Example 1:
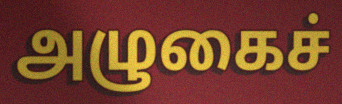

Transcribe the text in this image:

அழுகைச்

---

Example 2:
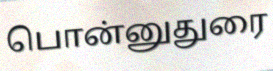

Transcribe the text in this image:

பொன்னுதுரை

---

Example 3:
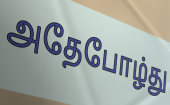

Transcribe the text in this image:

அதேபோழ்து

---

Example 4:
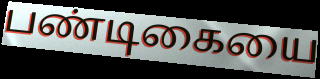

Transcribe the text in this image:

பண்டிகையை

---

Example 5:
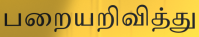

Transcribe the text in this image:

பறையறிவித்து